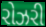
રોઝરી